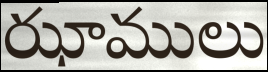
ఝాములు